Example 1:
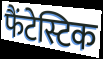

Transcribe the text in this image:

फैंटेस्टिक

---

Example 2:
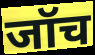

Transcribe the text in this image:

जॉच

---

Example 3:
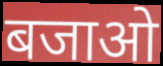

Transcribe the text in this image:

बजाओ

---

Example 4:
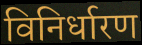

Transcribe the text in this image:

विनिर्धारण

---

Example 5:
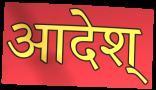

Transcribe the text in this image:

आदेश्